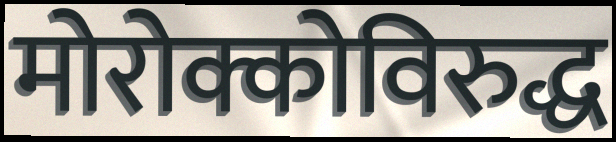
मोरोक्कोविरुद्ध